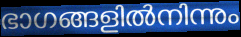
ഭാഗങ്ങളിൽനിന്നും